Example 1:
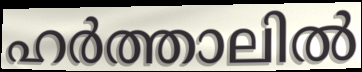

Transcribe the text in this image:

ഹർത്താലിൽ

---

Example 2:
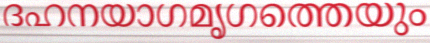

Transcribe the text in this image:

ദഹനയാഗമൃഗത്തെയും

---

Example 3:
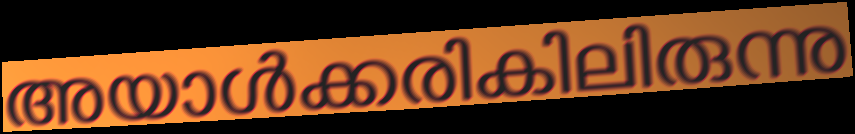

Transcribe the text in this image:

അയാൾക്കരികിലിരുന്നു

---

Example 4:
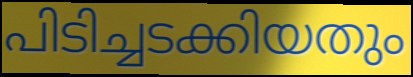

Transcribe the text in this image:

പിടിച്ചടക്കിയതും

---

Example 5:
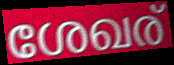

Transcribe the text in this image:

ശേഖര്